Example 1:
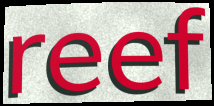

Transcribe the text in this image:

reef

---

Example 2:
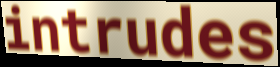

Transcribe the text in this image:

intrudes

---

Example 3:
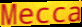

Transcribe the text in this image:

Mecca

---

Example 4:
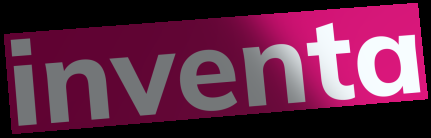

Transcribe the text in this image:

inventa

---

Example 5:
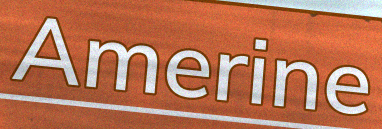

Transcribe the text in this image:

Amerine